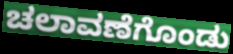
ಚಲಾವಣೆಗೊಂಡು